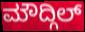
ಮೌದ್ಗಿಲ್